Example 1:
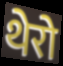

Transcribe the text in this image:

थेरो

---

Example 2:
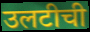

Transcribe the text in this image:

उलटीची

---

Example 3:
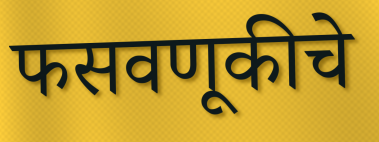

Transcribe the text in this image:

फसवणूकीचे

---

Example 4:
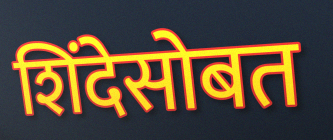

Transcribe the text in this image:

शिंदेसोबत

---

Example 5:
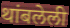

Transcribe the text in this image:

थांबलेली